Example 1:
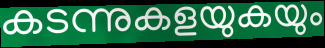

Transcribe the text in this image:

കടന്നുകളയുകയും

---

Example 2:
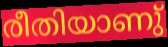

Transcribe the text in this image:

രീതിയാണു്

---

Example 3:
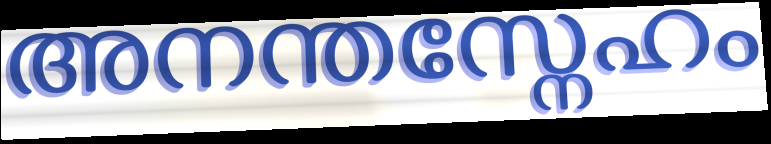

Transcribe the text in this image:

അനന്തസ്നേഹം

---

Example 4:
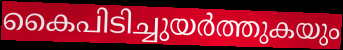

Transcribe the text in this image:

കൈപിടിച്ചുയർത്തുകയും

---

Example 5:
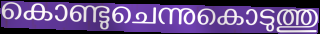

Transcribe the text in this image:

കൊണ്ടുചെന്നുകൊടുത്തു